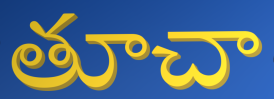
తూచా